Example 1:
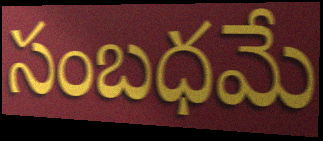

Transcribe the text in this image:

సంబధమే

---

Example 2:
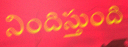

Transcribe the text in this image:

నిందిస్తుంది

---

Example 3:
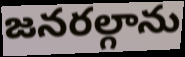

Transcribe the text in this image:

జనరల్గాను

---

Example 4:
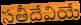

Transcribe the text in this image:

సతీదేవియే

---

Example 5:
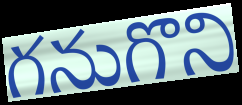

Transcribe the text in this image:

గనుగొని